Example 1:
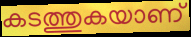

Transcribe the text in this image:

കടത്തുകയാണ്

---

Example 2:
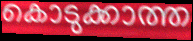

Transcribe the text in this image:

കൊടുക്കാത്ത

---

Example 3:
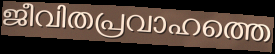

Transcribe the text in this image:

ജീവിതപ്രവാഹത്തെ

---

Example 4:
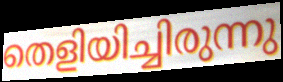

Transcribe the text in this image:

തെളിയിച്ചിരുന്നു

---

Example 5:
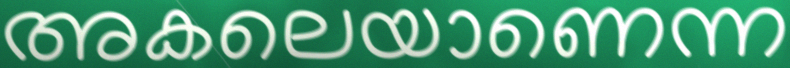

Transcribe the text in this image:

അകലെയാണെന്ന